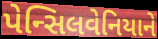
પેન્સિલવેનિયાને